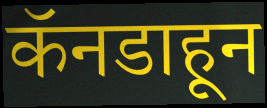
कॅनडाहून